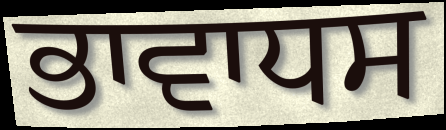
ਭਾਵਾਧਸ